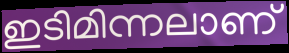
ഇടിമിന്നലാണ്